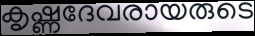
കൃഷ്ണദേവരായരുടെ